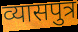
व्यासपुत्र